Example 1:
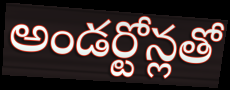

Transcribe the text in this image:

అండర్టోన్లతో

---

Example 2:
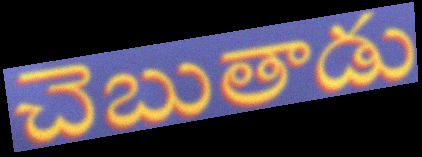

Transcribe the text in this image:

చెబుతాడు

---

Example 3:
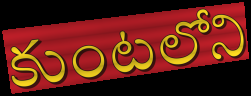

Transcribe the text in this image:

కుంటలోని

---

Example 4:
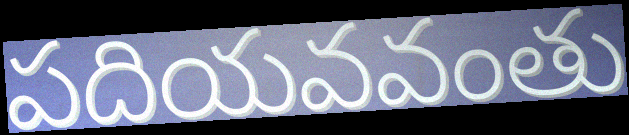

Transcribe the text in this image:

పదియవవంతు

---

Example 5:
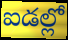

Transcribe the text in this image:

ఐడల్లో